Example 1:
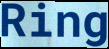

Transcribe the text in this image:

Ring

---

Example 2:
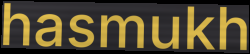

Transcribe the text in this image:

hasmukh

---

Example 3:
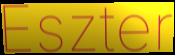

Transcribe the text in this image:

Eszter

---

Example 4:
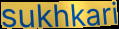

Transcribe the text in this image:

sukhkari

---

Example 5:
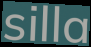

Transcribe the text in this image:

silla